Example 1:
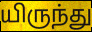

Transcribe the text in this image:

யிருந்து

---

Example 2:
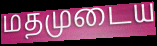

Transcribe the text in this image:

மதமுடைய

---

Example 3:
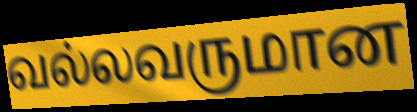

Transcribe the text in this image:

வல்லவருமான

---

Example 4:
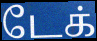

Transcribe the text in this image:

டேக்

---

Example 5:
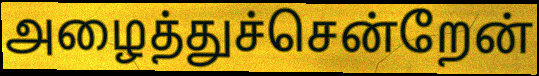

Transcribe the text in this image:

அழைத்துச்சென்றேன்